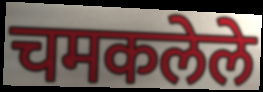
चमकलेले